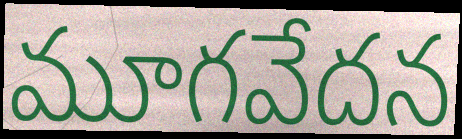
మూగవేదన